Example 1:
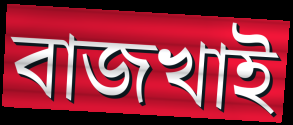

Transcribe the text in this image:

বাজখাই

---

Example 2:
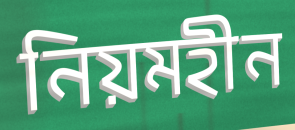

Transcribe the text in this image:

নিয়মহীন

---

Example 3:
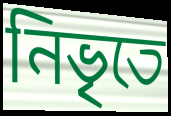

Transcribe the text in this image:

নিভৃতে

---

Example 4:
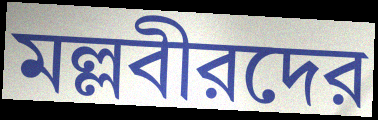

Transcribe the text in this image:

মল্লবীরদের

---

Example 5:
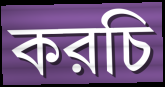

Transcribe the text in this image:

করচি